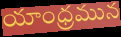
యాంధ్రమున